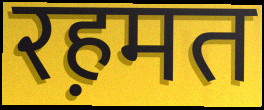
रह़मत